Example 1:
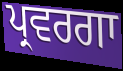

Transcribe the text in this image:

ਪ੍ਰਵਰਗਾ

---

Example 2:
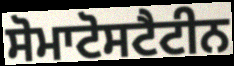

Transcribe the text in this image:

ਸੋਮਾਟੋਸਟੈਟੀਨ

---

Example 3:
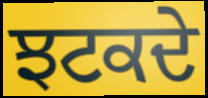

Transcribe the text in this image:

ਝਟਕਦੇ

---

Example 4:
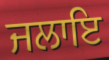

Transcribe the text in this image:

ਜਲਾਇ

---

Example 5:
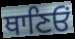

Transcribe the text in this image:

ਥਾਣਿਓਂ